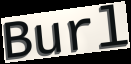
Burl